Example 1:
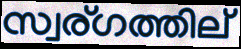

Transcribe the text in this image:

സ്വര്ഗത്തില്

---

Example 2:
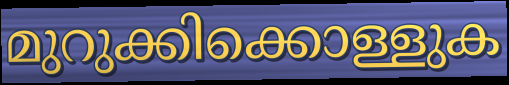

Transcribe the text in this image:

മുറുക്കിക്കൊള്ളുക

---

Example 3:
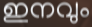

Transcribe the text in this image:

ഇനവും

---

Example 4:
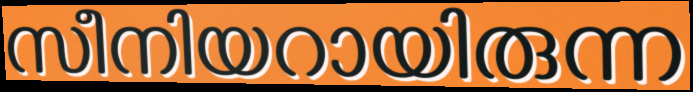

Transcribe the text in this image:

സീനിയറായിരുന്ന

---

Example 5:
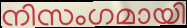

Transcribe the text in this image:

നിസംഗമായി